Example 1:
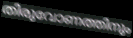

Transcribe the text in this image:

തിരുവോണത്തിനും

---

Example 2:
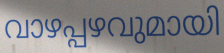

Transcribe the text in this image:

വാഴപ്പഴവുമായി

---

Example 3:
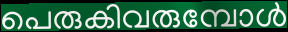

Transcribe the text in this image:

പെരുകിവരുമ്പോൾ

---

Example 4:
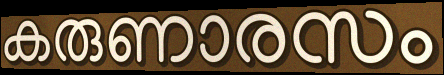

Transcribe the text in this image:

കരുണാരസം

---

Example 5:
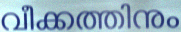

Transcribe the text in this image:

വീക്കത്തിനും